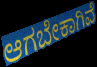
ಆಗಬೇಕಾಗಿವೆ